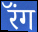
रॅंग